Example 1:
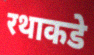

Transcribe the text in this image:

रथाकडे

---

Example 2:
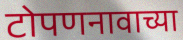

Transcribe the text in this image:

टोपणनावाच्या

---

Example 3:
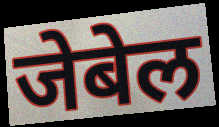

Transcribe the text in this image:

जेबेल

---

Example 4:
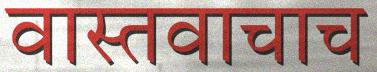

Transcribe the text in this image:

वास्तवाचाच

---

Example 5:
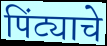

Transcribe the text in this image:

पिंट्याचे